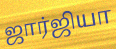
ஜார்ஜியா